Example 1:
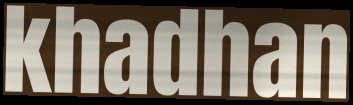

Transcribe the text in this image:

khadhan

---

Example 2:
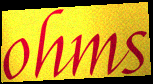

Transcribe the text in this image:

ohms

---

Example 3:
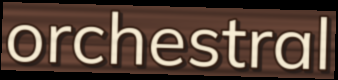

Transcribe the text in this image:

orchestral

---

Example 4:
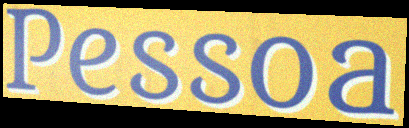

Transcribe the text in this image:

Pessoa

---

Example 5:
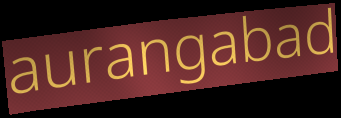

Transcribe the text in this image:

aurangabad